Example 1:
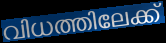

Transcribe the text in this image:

വിധത്തിലേക്ക്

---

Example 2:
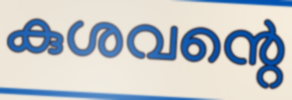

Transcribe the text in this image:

കുശവന്റെ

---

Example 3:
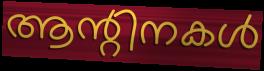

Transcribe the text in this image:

ആന്റിനകൾ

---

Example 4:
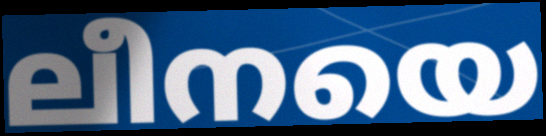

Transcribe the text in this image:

ലീനയെ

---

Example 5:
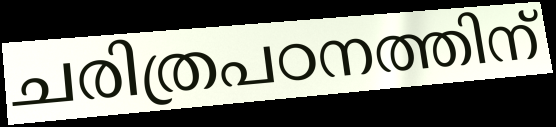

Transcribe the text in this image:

ചരിത്രപഠനത്തിന്